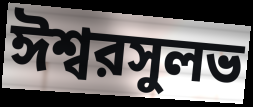
ঈশ্বরসুলভ